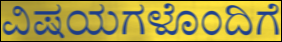
ವಿಷಯಗಳೊಂದಿಗೆ